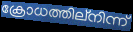
ക്രോധത്തില്നിന്ന്